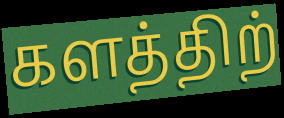
களத்திற்